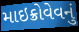
માઇક્રોવેવનું